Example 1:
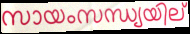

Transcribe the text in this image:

സായംസന്ധ്യയില്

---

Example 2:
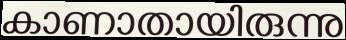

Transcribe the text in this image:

കാണാതായിരുന്നു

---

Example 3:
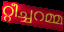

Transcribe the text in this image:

റ്റീച്ചറമ്മ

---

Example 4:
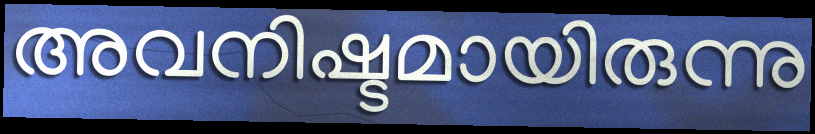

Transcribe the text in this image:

അവനിഷ്ടമായിരുന്നു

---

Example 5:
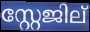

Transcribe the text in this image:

സ്റ്റേജില്